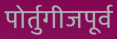
पोर्तुगीजपूर्व